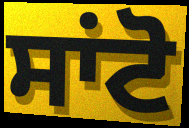
ਸਾਂਟੋ